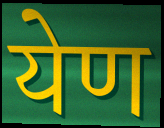
येण